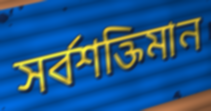
সৰ্বশক্তিমান